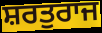
ਸ਼ਰਤੁਰਾਜ